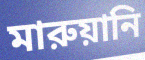
মারুয়ানি